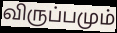
விருப்பமும்